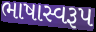
ભાષાસ્વરૂપ